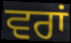
ਵਰਾਂ